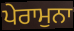
ਪੇਰਾਮੁਨਾ